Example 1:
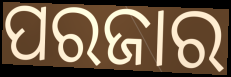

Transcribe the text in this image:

ପରଜାର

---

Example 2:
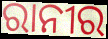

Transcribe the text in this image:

ରାନୀର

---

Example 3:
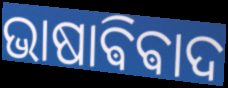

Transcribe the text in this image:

ଭାଷାଵିଵାଦ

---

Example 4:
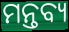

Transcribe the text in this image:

ମନ୍ତବ୍ୟ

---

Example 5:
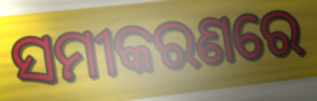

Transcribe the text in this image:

ସମୀକରଣରେ